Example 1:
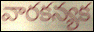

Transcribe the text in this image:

వారకన్యక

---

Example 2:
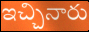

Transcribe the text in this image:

ఇచ్చినారు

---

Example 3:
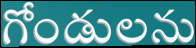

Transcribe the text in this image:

గోండులను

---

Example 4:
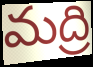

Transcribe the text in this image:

మద్రి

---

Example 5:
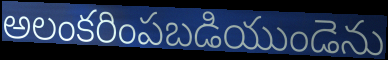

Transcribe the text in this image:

అలంకరింపబడియుండెను